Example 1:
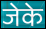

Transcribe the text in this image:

जेके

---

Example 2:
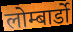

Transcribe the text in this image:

लोम्बार्डो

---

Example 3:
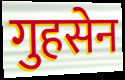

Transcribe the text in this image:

गुहसेन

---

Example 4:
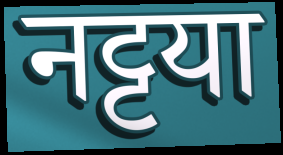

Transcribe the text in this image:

नट्टया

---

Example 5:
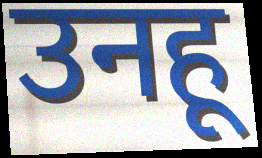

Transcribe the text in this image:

उनहू